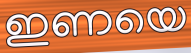
ഇണയെ